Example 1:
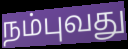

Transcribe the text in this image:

நம்புவது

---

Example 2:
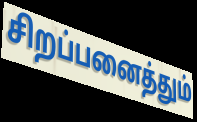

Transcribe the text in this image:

சிறப்பனைத்தும்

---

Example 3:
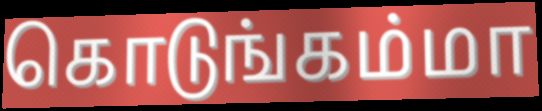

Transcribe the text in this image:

கொடுங்கம்மா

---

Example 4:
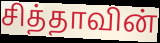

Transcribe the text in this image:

சித்தாவின்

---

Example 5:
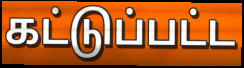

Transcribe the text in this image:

கட்டுப்பட்ட